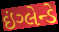
ઇંગ્લેન્ડે